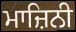
ਮਾਜ਼ਿਨੀ